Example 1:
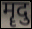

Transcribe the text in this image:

मॄदु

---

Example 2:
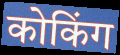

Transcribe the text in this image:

कोकिंग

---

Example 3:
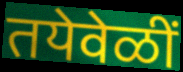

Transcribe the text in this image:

तयेवेळीं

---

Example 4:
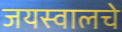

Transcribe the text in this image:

जयस्वालचे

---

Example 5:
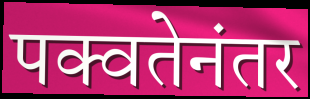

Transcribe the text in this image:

पक्वतेनंतर